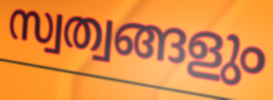
സ്വത്വങ്ങളും